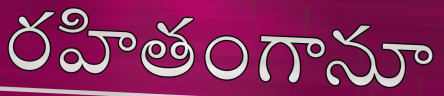
రహితంగానూ